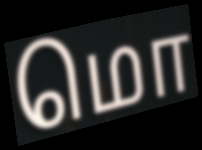
மொ